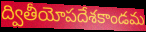
ద్వితీయోపదేశకాండమ